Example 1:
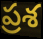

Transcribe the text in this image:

ప్రశ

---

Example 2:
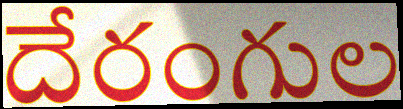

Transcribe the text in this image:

దేరంగుల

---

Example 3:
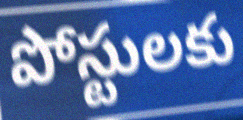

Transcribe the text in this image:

పోస్టులకు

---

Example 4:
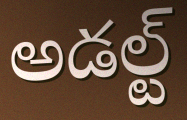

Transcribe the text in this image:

అడల్ట్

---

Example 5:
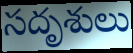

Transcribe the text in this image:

సదృశులు